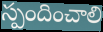
స్పందించాలి